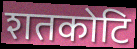
शतकोटि